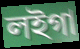
লইগা